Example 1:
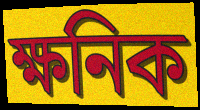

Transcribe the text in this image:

ক্ষনিক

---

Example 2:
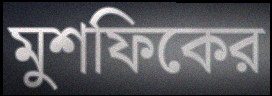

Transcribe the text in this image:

মুশফিকের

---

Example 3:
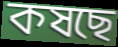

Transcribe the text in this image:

কষছে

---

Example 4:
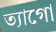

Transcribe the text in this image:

ত্যাগো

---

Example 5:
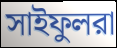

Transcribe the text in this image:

সাইফুলরা